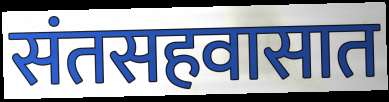
संतसहवासात